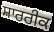
ਸ਼ਾਰਰੀਕ